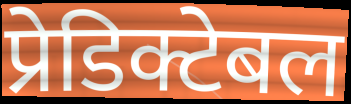
प्रेडिक्टेबल